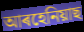
আৰহেনিয়াছ